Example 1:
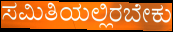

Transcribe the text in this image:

ಸಮಿತಿಯಲ್ಲಿರಬೇಕು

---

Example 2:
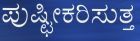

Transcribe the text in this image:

ಪುಷ್ಟೀಕರಿಸುತ್ತ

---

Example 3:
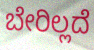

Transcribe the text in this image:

ಬೇರಿಲ್ಲದೆ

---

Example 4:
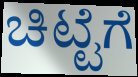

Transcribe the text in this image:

ಚಿಟ್ಟೆಗೆ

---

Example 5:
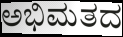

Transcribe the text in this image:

ಅಭಿಮತದ